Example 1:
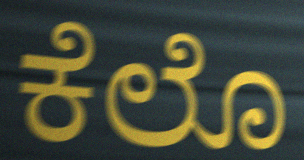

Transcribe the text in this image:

ಕೆಲೊ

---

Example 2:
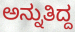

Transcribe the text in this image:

ಅನ್ನುತಿದ್ದ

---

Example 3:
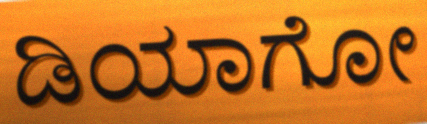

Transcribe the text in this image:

ಡಿಯಾಗೋ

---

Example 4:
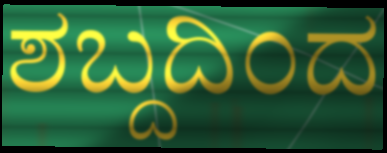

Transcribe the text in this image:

ಶಬ್ದದಿಂದ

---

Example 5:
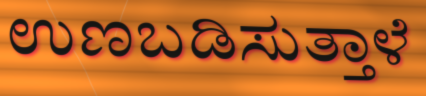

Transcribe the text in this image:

ಉಣಬಡಿಸುತ್ತಾಳೆ